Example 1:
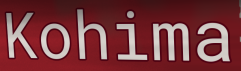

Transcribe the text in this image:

Kohima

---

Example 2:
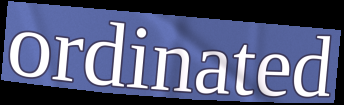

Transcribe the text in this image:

ordinated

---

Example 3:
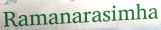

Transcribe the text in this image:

Ramanarasimha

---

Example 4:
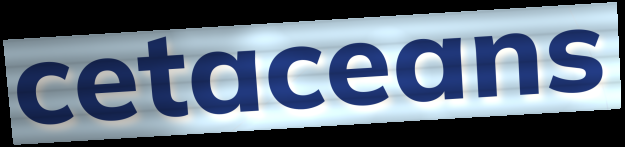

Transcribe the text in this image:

cetaceans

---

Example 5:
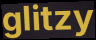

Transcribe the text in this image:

glitzy